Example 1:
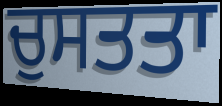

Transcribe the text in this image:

ਚੁਸਤਤਾ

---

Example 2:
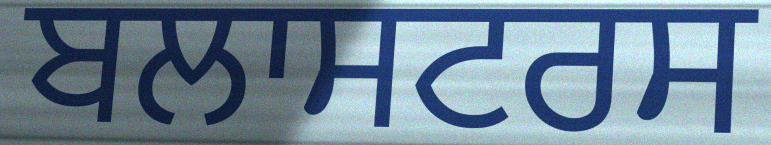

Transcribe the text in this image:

ਬਲਾਸਟਰਸ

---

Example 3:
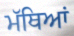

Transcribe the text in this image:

ਮੱਥਿਆਂ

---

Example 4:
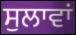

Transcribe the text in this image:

ਸੁਲਾਵਾਂ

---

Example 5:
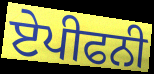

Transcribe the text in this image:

ਏਪੀਫਨੀ